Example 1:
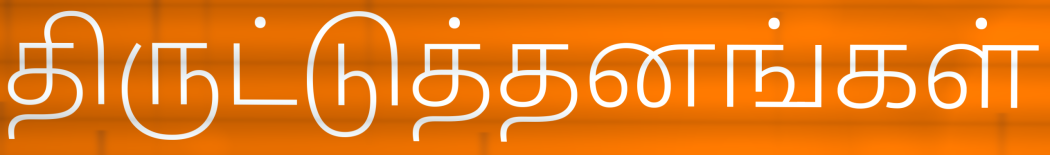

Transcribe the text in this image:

திருட்டுத்தனங்கள்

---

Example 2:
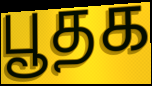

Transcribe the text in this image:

பூதக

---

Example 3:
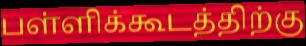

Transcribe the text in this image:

பள்ளிக்கூடத்திற்கு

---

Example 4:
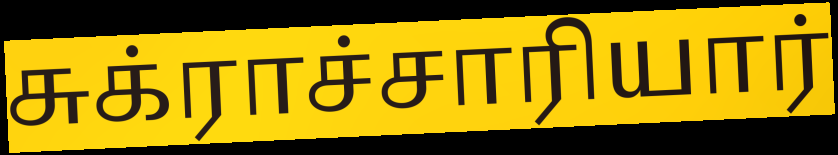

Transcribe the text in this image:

சுக்ராச்சாரியார்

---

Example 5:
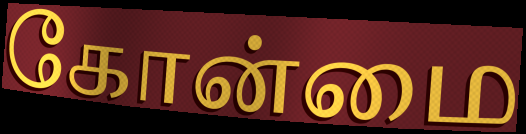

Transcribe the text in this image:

கோன்மை